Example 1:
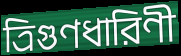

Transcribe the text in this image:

ত্রিগুণধারিণী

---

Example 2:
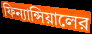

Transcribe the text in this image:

ফিন্যান্সিয়ালের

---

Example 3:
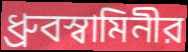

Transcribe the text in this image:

ধ্রুবস্বামিনীর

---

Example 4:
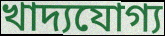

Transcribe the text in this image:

খাদ্যযোগ্য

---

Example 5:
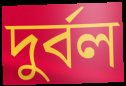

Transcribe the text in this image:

দুর্বল